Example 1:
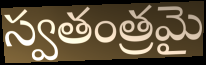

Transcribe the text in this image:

స్వతంత్రమై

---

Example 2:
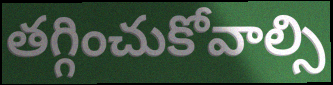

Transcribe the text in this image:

తగ్గించుకోవాల్సి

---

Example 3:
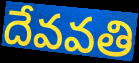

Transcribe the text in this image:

దేవవతి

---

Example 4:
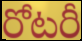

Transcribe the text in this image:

రోటరీ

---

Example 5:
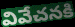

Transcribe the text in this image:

వివేచనకి